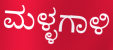
ಮಳ್ಳಗಾಳಿ